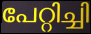
പേറ്റിച്ചി